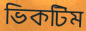
ভিকটিম